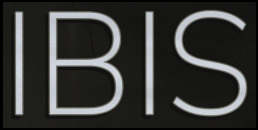
IBIS